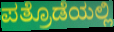
ಪತ್ರೊಡೆಯಲ್ಲಿ